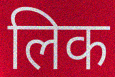
लिक